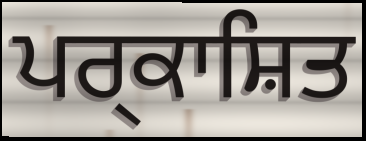
ਪਰ੍ਕਾਸ਼ਿਤ